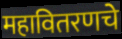
महावितरणचे